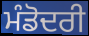
ਮੰਡੋਦਰੀ